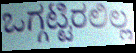
ಒಗ್ಗಟ್ಟಿರಲಿಲ್ಲ